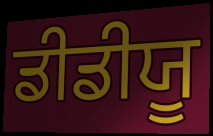
ਡੀਡੀਯੂ